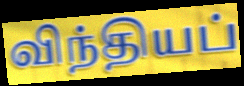
விந்தியப்